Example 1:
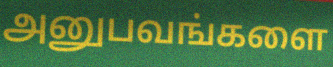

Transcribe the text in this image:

அனுபவங்களை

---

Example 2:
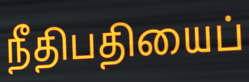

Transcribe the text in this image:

நீதிபதியைப்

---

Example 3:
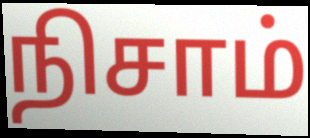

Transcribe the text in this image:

நிசாம்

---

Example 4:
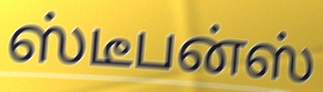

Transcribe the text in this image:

ஸ்டீபன்ஸ்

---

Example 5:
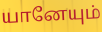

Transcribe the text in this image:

யானேயும்